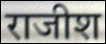
राजीश